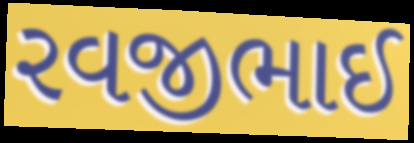
રવજીભાઈ